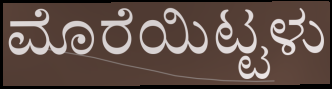
ಮೊರೆಯಿಟ್ಟಳು